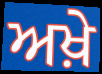
ਅਖ਼ੇ